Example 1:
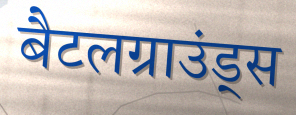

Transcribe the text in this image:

बैटलग्राउंड्स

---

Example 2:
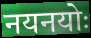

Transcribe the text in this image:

नयनयोः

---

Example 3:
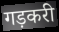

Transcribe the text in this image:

गड़करी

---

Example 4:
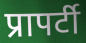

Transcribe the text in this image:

प्रापर्टी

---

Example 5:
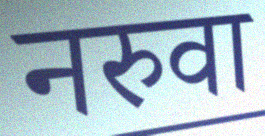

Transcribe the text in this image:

नरुवा